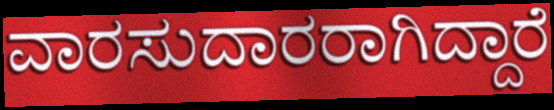
ವಾರಸುದಾರರಾಗಿದ್ದಾರೆ